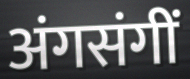
अंगसंगीं